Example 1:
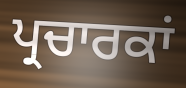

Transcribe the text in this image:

ਪ੍ਰਚਾਰਕਾਂ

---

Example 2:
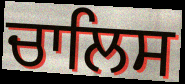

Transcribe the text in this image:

ਚਾਲਿਸ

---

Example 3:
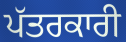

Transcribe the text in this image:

ਪੱਤਰਕਾਰੀ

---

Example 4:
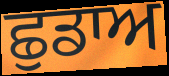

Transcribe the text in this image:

ਛੁਡਾਅ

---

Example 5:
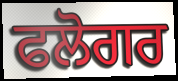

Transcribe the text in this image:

ਫਲੋਗਰ